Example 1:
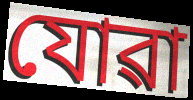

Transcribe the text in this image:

যোৱা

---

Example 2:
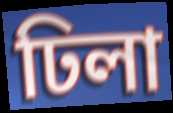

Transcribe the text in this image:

ঢিলা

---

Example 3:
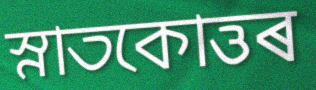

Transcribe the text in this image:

স্নাতকোত্তৰ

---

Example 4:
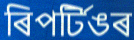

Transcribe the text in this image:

ৰিপৰ্টিঙৰ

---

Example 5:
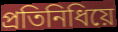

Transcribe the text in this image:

প্ৰতিনিধিয়ে